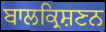
ਬਾਲਕ੍ਰਿਸ਼ਣਨ